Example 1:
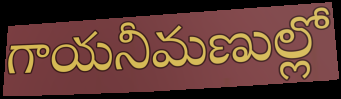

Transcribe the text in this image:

గాయనీమణుల్లో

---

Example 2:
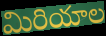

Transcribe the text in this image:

మిరియాల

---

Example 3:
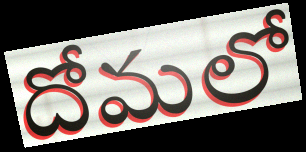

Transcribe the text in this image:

దోమలో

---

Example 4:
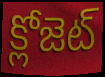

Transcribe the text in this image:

క్లోజెట్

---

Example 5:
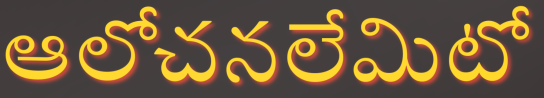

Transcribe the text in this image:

ఆలోచనలేమిటో